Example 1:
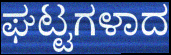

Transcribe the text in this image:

ಘಟ್ಟಗಳಾದ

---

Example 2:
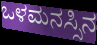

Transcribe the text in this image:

ಒಳಮನಸ್ಸಿನ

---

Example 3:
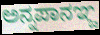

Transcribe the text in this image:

ಅನ್ನಪಾನಞ್ಚ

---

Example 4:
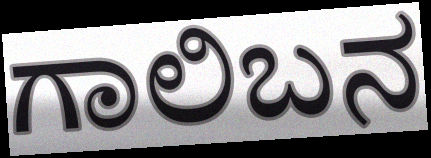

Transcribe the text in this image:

ಗಾಲಿಬನ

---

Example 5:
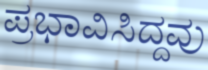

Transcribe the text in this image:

ಪ್ರಭಾವಿಸಿದ್ದವು